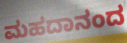
ಮಹದಾನಂದ